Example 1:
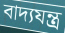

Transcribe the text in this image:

বাদ্যযন্ত্র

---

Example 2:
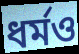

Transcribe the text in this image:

ধর্মও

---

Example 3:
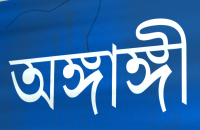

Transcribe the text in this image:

অঙ্গাঙ্গী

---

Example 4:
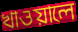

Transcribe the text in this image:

খাওয়ালে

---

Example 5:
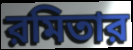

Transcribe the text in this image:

রমিতার